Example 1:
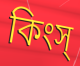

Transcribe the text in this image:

কিংস্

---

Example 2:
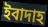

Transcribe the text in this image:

ইবাদাহ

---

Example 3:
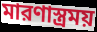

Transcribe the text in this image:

মারণাস্ত্রময়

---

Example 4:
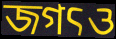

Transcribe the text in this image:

জগৎও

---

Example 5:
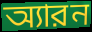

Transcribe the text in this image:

অ্যারন